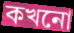
কখনো